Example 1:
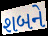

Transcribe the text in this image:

શબને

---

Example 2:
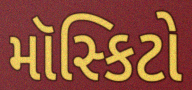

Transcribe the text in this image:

મૉસ્કિટો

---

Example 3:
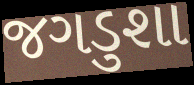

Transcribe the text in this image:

જગડુશા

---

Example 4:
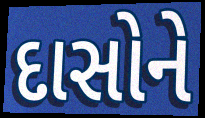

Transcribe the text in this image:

દાસોને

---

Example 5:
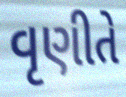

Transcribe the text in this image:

વૃણીતે